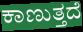
ಕಾಣುತ್ತದೆ